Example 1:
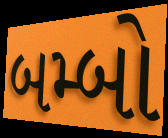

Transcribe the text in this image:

બમ્બો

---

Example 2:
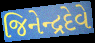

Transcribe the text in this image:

જિનેન્દ્રદેવે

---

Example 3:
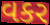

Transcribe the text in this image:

વકર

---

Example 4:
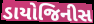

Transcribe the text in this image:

ડાયોજિનીસ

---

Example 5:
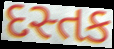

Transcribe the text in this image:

દસ્તક